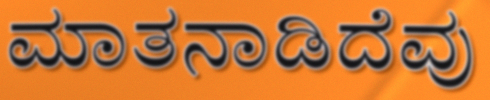
ಮಾತನಾಡಿದೆವು